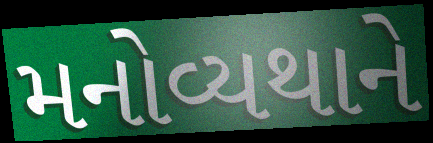
મનોવ્યથાને